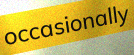
occasionally